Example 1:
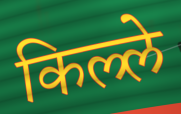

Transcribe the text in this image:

किल्ले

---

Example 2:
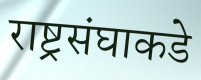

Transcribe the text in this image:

राष्ट्रसंघाकडे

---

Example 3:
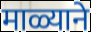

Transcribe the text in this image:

माळ्याने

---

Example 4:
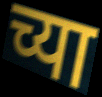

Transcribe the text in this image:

च्या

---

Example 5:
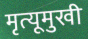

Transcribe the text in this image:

मृत्यूमुखी